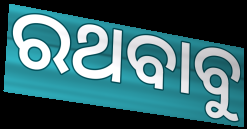
ରଥବାବୁ